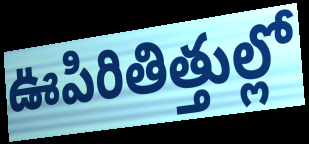
ఊపిరితిత్తుల్లో